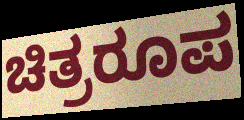
ಚಿತ್ರರೂಪ